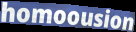
homoousion